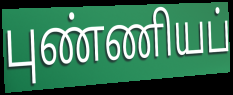
புண்ணியப்